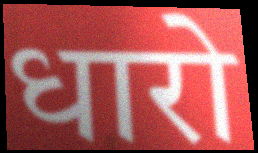
धारो